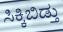
ಸಿಕ್ಕಿಬಿಡ್ತು